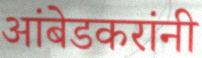
आंबेडकरांनी